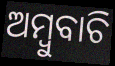
ଅମ୍ବୁବାଚି